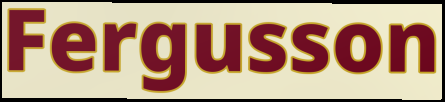
Fergusson